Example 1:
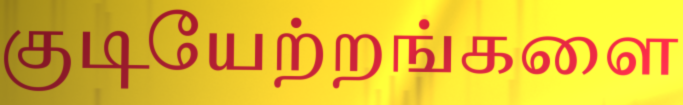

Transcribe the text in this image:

குடியேற்றங்களை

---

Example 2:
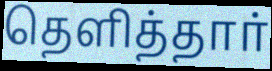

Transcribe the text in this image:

தெளித்தார்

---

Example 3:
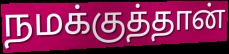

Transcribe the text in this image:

நமக்குத்தான்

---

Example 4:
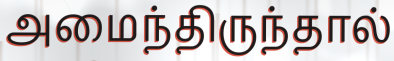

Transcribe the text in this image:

அமைந்திருந்தால்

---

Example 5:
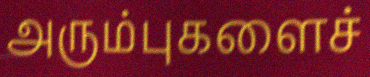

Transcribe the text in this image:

அரும்புகளைச்